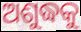
ଅଶୁଦ୍ଧକୁ